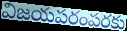
విజయపరంపరకు